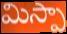
మిస్పా